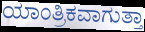
ಯಾಂತ್ರಿಕವಾಗುತ್ತಾ